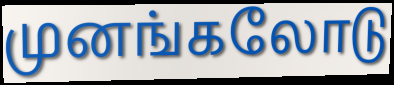
முனங்கலோடு